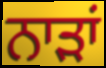
ਨਾੜਾਂ